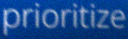
prioritize